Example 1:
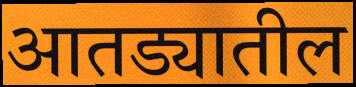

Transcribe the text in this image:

आतड्यातील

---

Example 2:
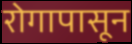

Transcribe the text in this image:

रोगापासून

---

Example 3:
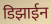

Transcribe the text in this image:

डिझाईन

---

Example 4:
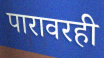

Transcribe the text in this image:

पारावरही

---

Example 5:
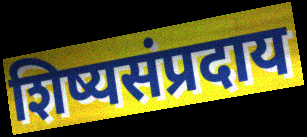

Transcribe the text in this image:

शिष्यसंप्रदाय